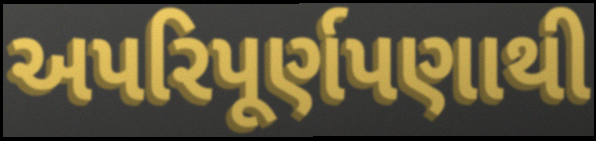
અપરિપૂર્ણપણાથી